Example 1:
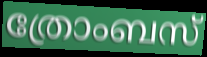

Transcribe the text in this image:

ത്രോംബസ്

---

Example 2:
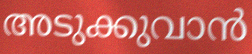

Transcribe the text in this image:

അടുക്കുവാൻ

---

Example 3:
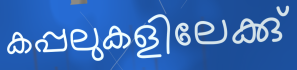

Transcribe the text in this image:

കപ്പലുകളിലേക്കു്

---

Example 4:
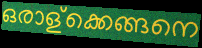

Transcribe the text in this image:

ഒരാള്ക്കെങ്ങനെ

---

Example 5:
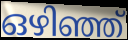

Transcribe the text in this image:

ഒഴിഞ്ഞ്